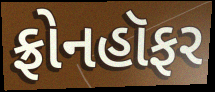
ફ્રોનહૉફર